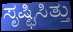
ಸೃಷ್ಟಿಸಿತ್ತು